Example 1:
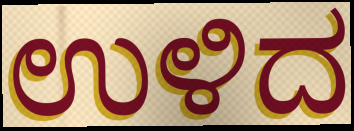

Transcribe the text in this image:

ಉಳಿದ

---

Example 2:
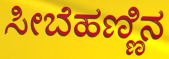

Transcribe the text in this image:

ಸೀಬೆಹಣ್ಣಿನ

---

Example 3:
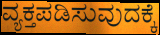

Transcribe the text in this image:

ವ್ಯಕ್ತಪಡಿಸುವುದಕ್ಕೆ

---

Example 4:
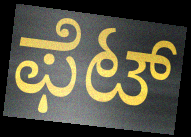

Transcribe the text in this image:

ಫೆಟ್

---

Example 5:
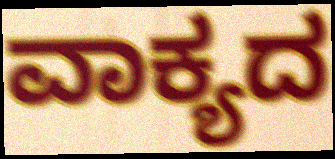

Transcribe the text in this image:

ವಾಕ್ಯದ